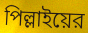
পিল্লাইয়ের